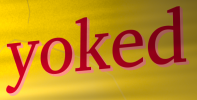
yoked